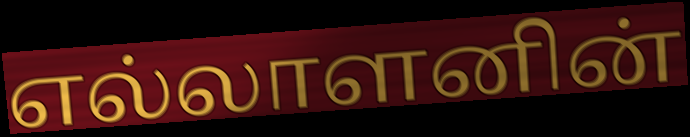
எல்லாளனின்